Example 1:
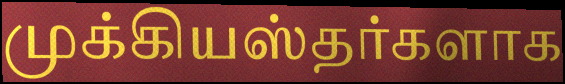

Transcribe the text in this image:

முக்கியஸ்தர்களாக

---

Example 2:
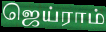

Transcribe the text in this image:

ஜெய்ராம்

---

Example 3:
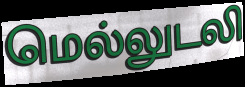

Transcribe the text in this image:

மெல்லுடலி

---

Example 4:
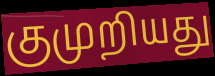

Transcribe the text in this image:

குமுறியது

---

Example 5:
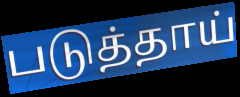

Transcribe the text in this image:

படுத்தாய்